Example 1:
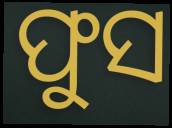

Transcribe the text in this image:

ଫୁସ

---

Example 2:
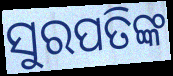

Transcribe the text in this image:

ସୁରପତିଙ୍କ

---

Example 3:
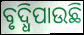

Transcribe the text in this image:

ବୃଦ୍ଧିପାଉଛି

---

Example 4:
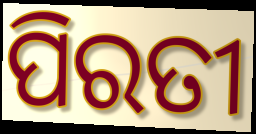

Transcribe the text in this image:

ପିରତୀ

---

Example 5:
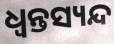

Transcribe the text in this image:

ଧ୍ଵନ୍ତସ୍ୟନ୍ଦ